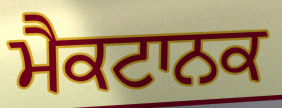
ਮੈਕਟਾਨਕ